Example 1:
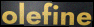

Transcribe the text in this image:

olefine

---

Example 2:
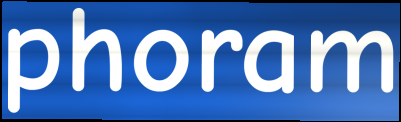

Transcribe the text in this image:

phoram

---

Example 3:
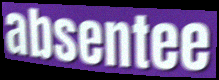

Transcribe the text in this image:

absentee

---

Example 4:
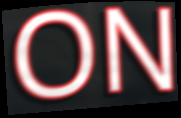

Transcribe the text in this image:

ON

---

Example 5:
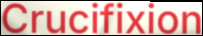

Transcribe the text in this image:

Crucifixion